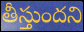
తీస్తుందని